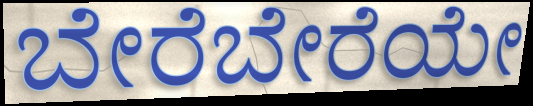
ಬೇರೆಬೇರೆಯೇ